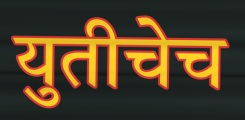
युतीचेच